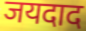
जयदाद